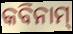
କବିନାମ୍